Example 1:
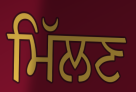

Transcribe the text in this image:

ਮਿੱਲਣ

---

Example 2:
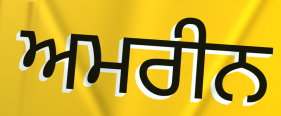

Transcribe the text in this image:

ਅਮਰੀਨ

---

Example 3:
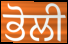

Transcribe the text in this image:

ਭੋਲੀ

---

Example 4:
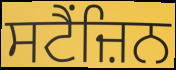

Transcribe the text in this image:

ਸਟੈਂਜ਼ਿਨ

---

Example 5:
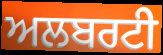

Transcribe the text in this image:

ਅਲਬਰਟੀ